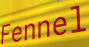
Fennel